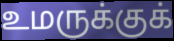
உமருக்குக்